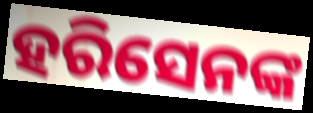
ହରିସେନଙ୍କ